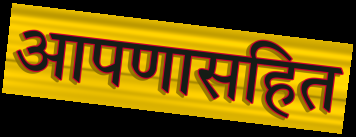
आपणासहित